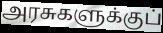
அரசுகளுக்குப்